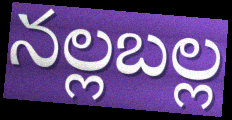
నల్లబల్ల